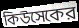
কিউসেকের